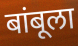
बांबूला